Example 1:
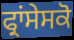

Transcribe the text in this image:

ਫ੍ਰਾਂਸੇਸਕੋ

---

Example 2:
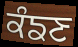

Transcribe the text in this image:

ਕੰਙਣ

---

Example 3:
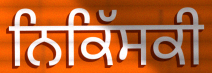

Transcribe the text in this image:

ਨਿਕਿੱਸਕੀ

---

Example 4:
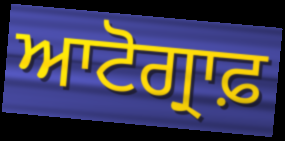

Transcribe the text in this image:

ਆਟੋਗ੍ਰਾਫ਼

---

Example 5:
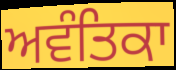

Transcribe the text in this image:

ਅਵੰਤਿਕਾ